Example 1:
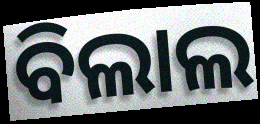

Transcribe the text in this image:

ବିଲାଲ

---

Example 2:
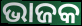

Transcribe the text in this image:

ଭାଜକ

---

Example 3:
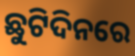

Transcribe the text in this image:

ଛୁଟିଦିନରେ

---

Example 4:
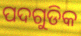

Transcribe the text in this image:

ପଦଗୁଡିକ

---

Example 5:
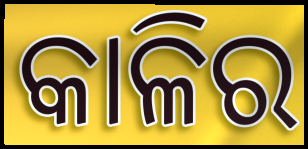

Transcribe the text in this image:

କାଳିର